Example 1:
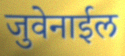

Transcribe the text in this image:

जुवेनाईल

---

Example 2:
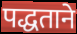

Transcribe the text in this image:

पद्धताने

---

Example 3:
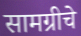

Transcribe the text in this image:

सामग्रीचे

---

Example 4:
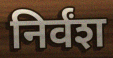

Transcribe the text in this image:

निर्वंश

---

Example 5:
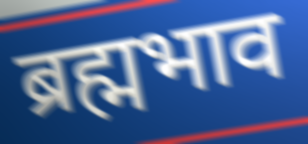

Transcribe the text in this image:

ब्रह्मभाव